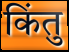
किंतु